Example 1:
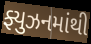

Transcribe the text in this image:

ફ્યુઝનમાંથી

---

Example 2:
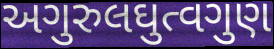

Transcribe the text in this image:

અગુરુલઘુત્વગુણ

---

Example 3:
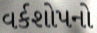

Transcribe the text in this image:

વર્કશોપનો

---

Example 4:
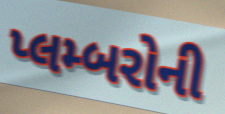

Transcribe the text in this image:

પ્લમ્બરોની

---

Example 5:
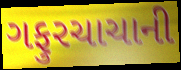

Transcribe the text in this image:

ગફુરચાચાની